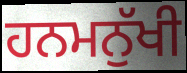
ਹਨਮਨੁੱਖੀ